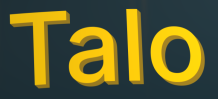
Talo